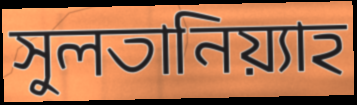
সুলতানিয়্যাহ